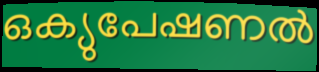
ഒക്യുപേഷണൽ